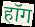
हॉग